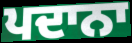
ਪਦਾਨਾ